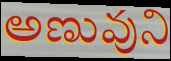
అణువుని